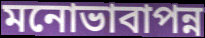
মনোভাবাপন্ন